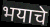
भयाचे